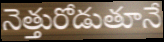
నెత్తురోడుతూనే